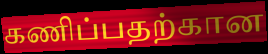
கணிப்பதற்கான